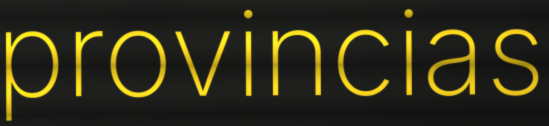
provincias